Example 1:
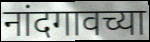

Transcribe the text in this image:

नांदगावच्या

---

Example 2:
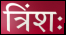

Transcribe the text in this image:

त्रिंशः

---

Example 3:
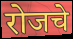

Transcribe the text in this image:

रोजचे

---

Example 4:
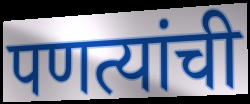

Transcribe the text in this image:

पणत्यांची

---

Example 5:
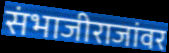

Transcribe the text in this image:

संभाजीराजांवर